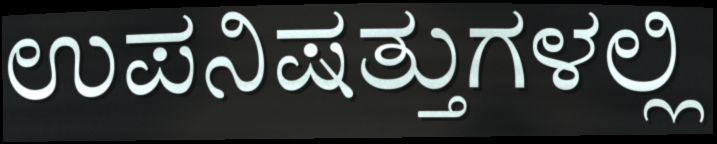
ಉಪನಿಷತ್ತುಗಳಲ್ಲಿ